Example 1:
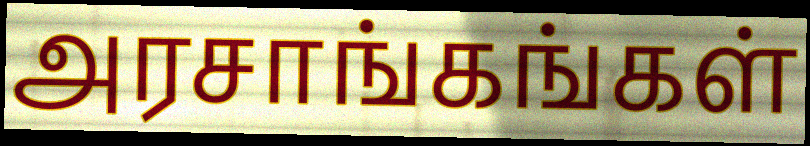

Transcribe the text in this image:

அரசாங்கங்கள்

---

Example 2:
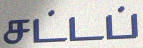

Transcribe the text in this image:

சட்டப்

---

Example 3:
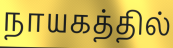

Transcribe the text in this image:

நாயகத்தில்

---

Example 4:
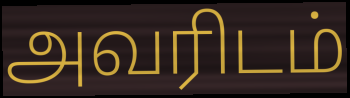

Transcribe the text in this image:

அவரிடம்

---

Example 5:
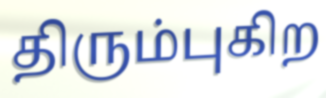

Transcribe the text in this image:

திரும்புகிற